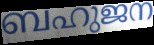
ബഹുജന